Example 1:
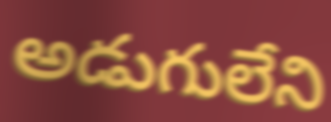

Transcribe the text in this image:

అడుగులేని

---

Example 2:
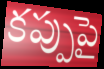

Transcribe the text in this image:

కప్పుపై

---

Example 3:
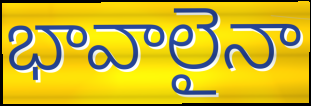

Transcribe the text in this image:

భావాలైనా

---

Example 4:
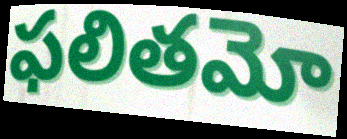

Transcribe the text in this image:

ఫలితమో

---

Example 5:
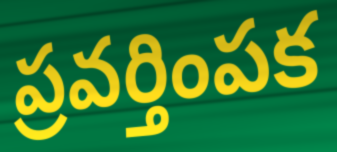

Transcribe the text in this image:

ప్రవర్తింపక